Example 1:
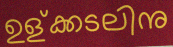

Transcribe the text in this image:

ഉള്ക്കടലിനു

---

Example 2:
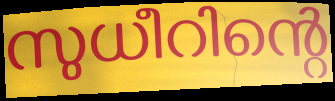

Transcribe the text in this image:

സുധീറിന്റെ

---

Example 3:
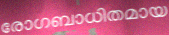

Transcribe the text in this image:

രോഗബാധിതമായ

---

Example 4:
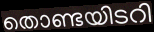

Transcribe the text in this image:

തൊണ്ടയിടറി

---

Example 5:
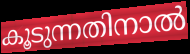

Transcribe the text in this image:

കൂടുന്നതിനാൽ